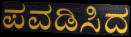
ಪವಡಿಸಿದ